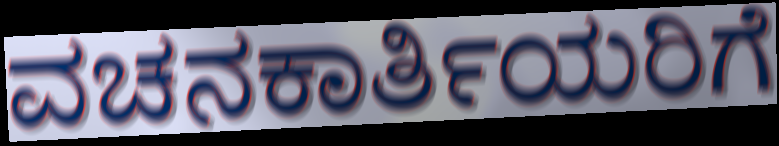
ವಚನಕಾರ್ತಿಯರಿಗೆ